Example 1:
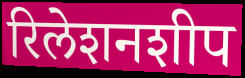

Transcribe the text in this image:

रिलेशनशीप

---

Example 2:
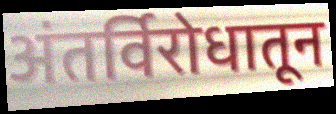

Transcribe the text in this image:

अंतर्विरोधातून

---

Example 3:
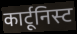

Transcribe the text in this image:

कार्टूनिस्ट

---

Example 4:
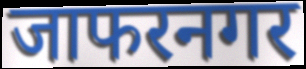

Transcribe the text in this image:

जाफरनगर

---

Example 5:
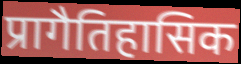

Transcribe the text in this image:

प्रागैतिहासिक